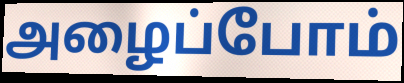
அழைப்போம்